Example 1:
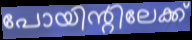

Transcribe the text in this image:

പോയിന്റിലേക്ക്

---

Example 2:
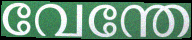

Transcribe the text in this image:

വേന്തേ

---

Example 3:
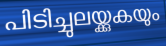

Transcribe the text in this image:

പിടിച്ചുലയ്ക്കുകയും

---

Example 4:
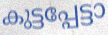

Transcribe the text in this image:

കുട്ടപ്പേട്ടാ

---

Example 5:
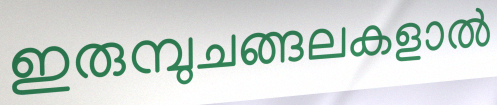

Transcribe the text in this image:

ഇരുമ്പുചങ്ങലകളാൽ